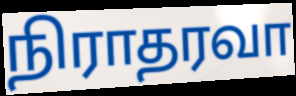
நிராதரவா